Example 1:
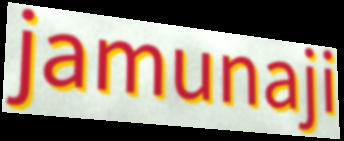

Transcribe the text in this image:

jamunaji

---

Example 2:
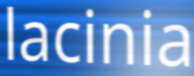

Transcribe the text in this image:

lacinia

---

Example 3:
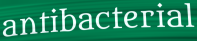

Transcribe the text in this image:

antibacterial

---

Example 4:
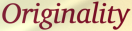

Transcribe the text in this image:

Originality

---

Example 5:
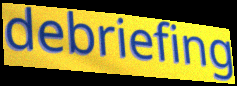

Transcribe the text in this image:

debriefing